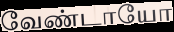
வேண்டாயோ